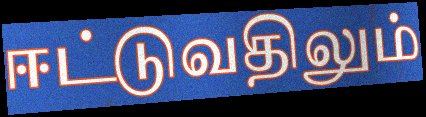
ஈட்டுவதிலும்